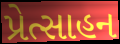
પ્રેત્સાહન